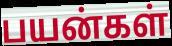
பயன்கள்